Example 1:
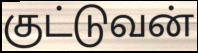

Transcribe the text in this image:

குட்டுவன்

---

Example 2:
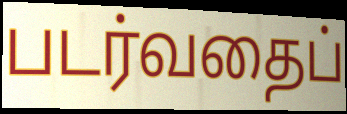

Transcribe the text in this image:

படர்வதைப்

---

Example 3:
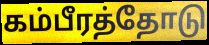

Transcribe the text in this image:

கம்பீரத்தோடு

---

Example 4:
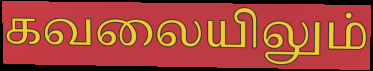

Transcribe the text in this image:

கவலையிலும்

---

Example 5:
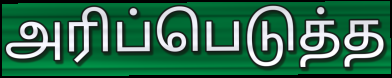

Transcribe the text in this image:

அரிப்பெடுத்த